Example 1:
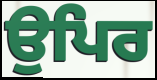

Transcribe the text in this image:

ਉਪਿਰ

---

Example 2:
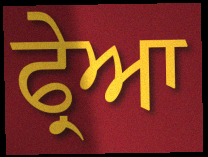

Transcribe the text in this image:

ਫ੍ਰੇਆ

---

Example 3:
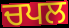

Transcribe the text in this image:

ਚਪਲ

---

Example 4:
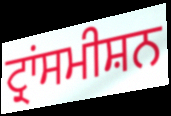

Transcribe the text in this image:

ਟ੍ਰਾਂਸਮੀਸ਼ਨ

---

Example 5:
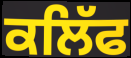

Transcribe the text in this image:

ਕਲਿੱਫ